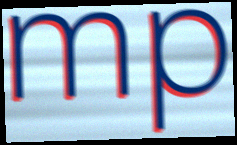
mp